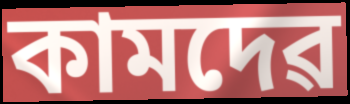
কামদেৱ